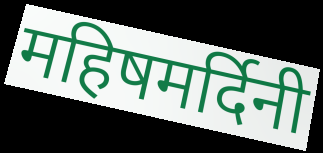
महिषमर्दिनी